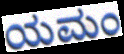
ಯಮಂ